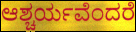
ಆಶ್ಚರ್ಯವೆಂದರೆ